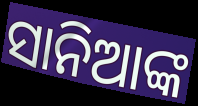
ସାନିଆଙ୍କ